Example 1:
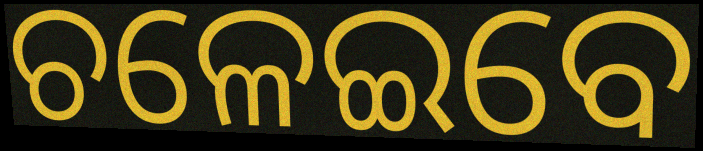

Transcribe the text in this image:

ଚଳେଇବେ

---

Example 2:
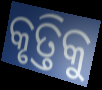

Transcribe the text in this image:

କୃତ୍ତିକୁ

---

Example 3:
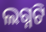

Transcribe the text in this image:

ଲଗ୍ନଟି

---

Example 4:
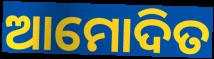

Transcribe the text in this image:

ଆମୋଦିତ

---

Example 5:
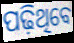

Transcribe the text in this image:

ପଢ଼ିଥିବେ